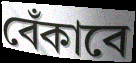
বেঁকাবে